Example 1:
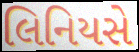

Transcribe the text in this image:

લિનિયસે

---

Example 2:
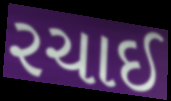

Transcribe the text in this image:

રચાઈ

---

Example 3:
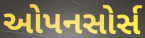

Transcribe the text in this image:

ઓપનસોર્સ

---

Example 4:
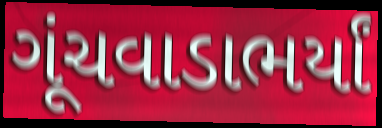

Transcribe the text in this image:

ગૂંચવાડાભર્યાં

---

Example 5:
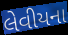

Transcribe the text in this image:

લેવીયના